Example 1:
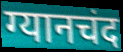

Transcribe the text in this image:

ग्यानचंद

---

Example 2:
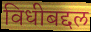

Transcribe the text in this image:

विधीबद्दल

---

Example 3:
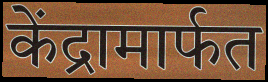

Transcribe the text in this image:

केंद्रामार्फत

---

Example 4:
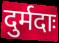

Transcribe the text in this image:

दुर्मदाः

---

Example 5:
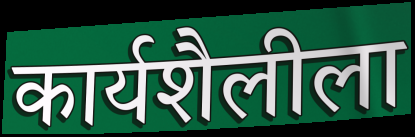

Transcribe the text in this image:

कार्यशैलीला